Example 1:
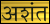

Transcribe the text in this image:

अशंत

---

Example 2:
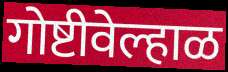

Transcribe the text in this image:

गोष्टीवेल्हाळ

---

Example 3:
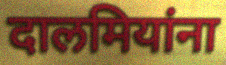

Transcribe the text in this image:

दालमियांना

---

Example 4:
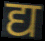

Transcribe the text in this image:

द्य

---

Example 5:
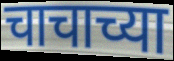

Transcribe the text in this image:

चाचाच्या